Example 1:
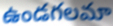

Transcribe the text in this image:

ఉండగలమా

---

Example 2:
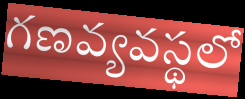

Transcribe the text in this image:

గణవ్యవస్థలో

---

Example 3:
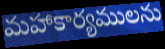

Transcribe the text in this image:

మహాకార్యములను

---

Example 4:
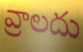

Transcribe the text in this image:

వ్రాలదు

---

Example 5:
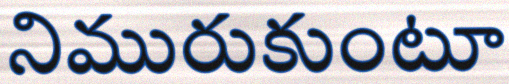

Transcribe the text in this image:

నిమురుకుంటూ